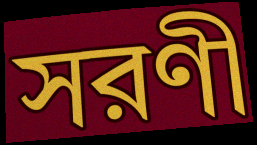
সরণী